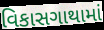
વિકાસગાથામાં